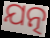
ଯତ୍ନ